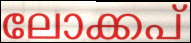
ലോക്കപ്